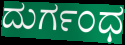
ದುರ್ಗಂಧ